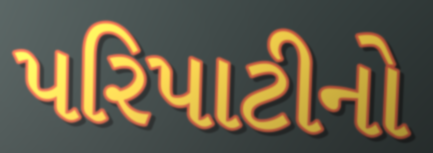
પરિપાટીનો